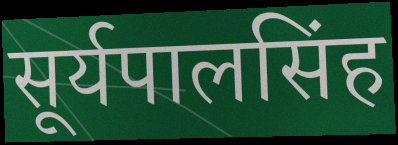
सूर्यपालसिंह